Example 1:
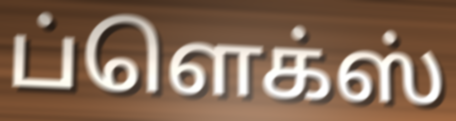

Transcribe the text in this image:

ப்ளெக்ஸ்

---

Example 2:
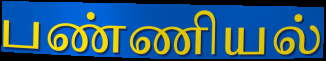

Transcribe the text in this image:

பண்ணியல்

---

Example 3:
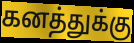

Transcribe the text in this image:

கனத்துக்கு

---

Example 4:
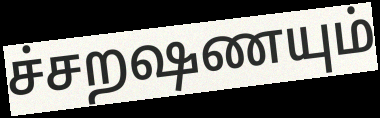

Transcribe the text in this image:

ச்சறஷணயும்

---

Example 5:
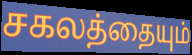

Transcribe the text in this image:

சகலத்தையும்